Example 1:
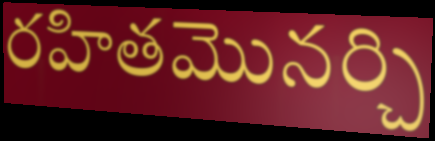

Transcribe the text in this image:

రహితమొనర్చి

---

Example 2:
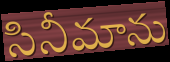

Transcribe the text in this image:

సినీమాను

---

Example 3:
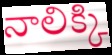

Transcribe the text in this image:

నాలిక్కి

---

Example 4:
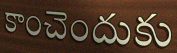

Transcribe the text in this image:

కాంచెందుకు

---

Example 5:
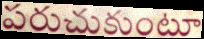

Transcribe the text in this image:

పరుచుకుంటూ